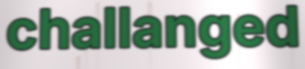
challanged